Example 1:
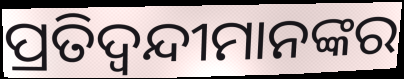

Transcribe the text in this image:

ପ୍ରତିଦ୍ୱନ୍ଦୀମାନଙ୍କର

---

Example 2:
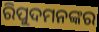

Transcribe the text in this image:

ରିପୁଦମନଙ୍କର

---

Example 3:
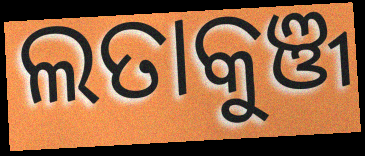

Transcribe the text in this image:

ଲତାକୁଞ୍ଜ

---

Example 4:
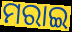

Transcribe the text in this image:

ମରାଇ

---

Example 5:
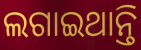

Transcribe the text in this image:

ଲଗାଇଥାନ୍ତି